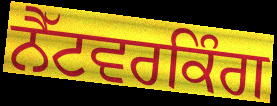
ਨੈੱਟਵਰਕਿੰਗ